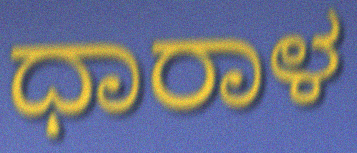
ಧಾರಾಳ